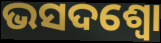
ଭସଦଶ୍ଵୋ